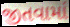
જીતવામાં